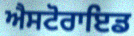
ਐਸਟੋਰਾਇਡ